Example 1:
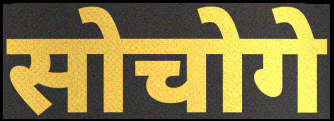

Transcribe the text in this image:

सोचोगे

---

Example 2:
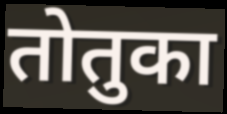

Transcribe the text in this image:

तोतुका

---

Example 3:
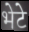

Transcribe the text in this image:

भेटे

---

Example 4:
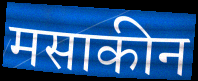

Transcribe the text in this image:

मसाकीन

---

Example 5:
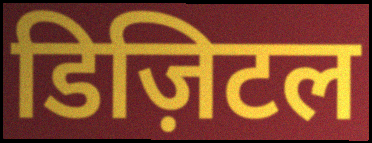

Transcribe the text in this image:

डिज़िटल